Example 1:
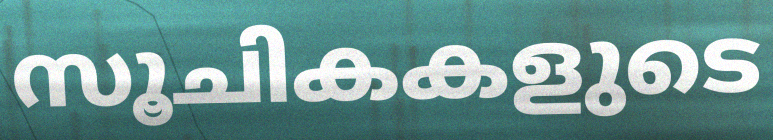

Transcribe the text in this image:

സൂചികകളുടെ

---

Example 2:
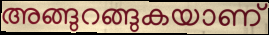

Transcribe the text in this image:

അങ്ങുറങ്ങുകയാണ്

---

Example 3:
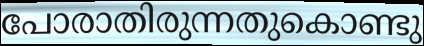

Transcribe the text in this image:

പോരാതിരുന്നതുകൊണ്ടു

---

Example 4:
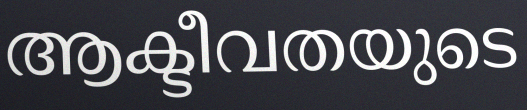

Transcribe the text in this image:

ആക്ടീവതയുടെ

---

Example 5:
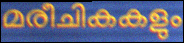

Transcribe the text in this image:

മരീചികകളും